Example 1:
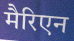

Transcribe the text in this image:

मैरिएन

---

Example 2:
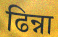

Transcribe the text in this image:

ढिन्ना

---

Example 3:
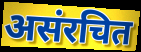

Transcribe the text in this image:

असंरचित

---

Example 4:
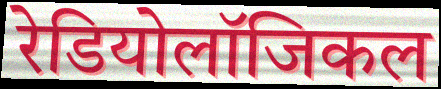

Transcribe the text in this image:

रेडियोलॉजिकल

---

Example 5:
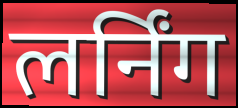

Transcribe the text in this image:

लर्निंग